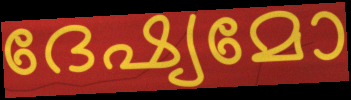
ദേഷ്യമോ